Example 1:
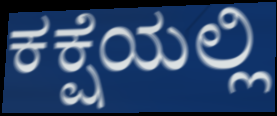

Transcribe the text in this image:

ಕಕ್ಷೆಯಲ್ಲಿ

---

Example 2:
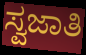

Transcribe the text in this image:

ಸ್ವಜಾತಿ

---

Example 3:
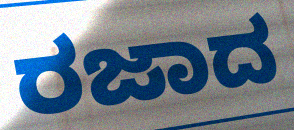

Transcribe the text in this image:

ರಜಾದ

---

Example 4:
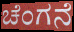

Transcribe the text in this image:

ಚೆಂಗನೆ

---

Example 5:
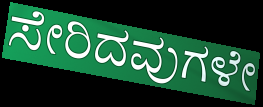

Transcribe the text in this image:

ಸೇರಿದವುಗಳೇ